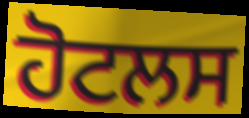
ਹੋਟਲਸ